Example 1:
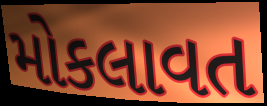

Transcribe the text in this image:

મોકલાવત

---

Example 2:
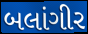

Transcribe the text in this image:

બલાંગીર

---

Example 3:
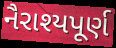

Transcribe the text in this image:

નૈરાશ્યપૂર્ણ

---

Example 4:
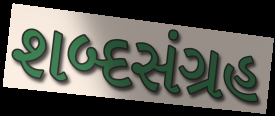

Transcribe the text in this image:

શબ્દસંગ્રહ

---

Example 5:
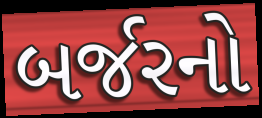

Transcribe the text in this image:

બર્જરનો